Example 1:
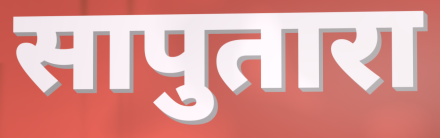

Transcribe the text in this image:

सापुतारा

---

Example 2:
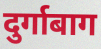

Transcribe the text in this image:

दुर्गाबाग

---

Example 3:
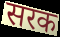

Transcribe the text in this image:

सरक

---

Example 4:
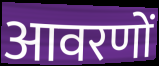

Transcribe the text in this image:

आवरणों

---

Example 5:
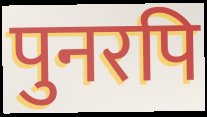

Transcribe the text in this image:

पुनरपि